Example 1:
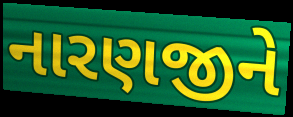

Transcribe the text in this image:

નારણજીને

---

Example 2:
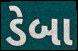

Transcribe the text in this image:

ડેબા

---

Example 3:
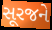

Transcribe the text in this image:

સૂરજને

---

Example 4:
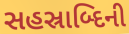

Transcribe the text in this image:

સહસ્રાબ્દિની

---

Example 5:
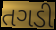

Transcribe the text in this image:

તગડી